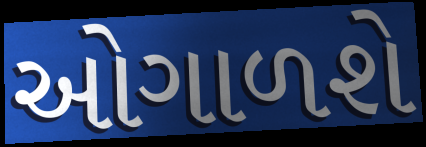
ઓગાળશે